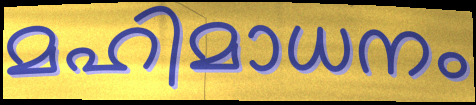
മഹിമാധനം